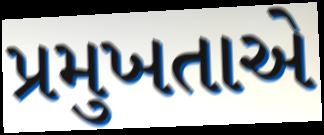
પ્રમુખતાએ